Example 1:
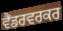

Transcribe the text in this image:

ਵੈਂਡਰਵਰਕਰ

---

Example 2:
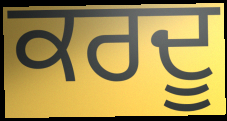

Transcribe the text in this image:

ਕਰਦੂ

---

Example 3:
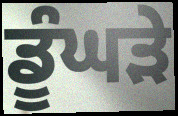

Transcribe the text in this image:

ਡੂੰਘੜੇ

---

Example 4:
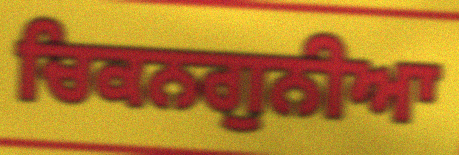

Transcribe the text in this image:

ਚਿਕਨਗੁਨੀਆ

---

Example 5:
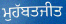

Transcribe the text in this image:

ਮੁਹੱਬਤਜੀਤ